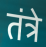
तंत्रे